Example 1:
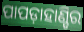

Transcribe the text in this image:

ପାପଡ଼ାହାଣ୍ଡିର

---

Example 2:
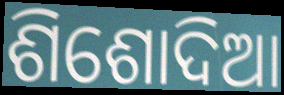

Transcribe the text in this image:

ଶିଶୋଦିଆ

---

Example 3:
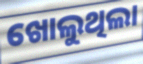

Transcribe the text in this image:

ଖୋଲୁଥିଲା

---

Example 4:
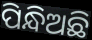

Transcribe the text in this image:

ପିନ୍ଧିଅଛି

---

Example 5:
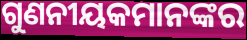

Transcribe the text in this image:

ଗୁଣନୀୟକମାନଙ୍କର